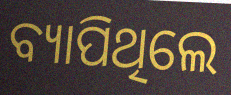
ବ୍ୟାପିଥିଲେ